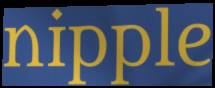
nipple